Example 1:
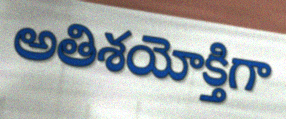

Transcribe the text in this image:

అతిశయోక్తిగా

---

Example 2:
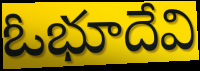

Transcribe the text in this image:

ఓభూదేవి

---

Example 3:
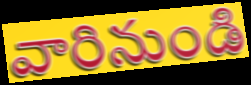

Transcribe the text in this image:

వారినుండి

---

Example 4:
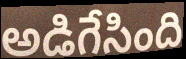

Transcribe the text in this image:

అడిగేసింది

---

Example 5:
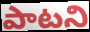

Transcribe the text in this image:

పాటని